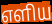
எளிய